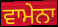
ਵਾਮੇਨਾ